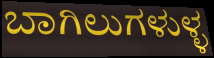
ಬಾಗಿಲುಗಳುಳ್ಳ